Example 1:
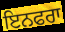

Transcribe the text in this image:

ਇਨਫਰਾ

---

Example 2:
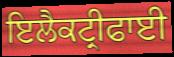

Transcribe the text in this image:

ਇਲੈਕਟ੍ਰੀਫਾਈ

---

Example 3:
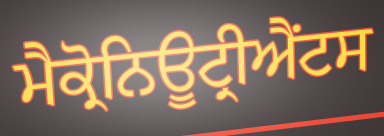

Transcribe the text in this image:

ਮੈਕ੍ਰੋਨਿਊਟ੍ਰੀਐਂਟਸ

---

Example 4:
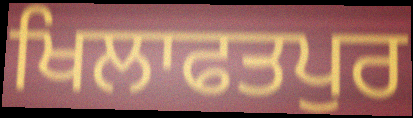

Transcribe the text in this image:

ਖਿਲਾਫਤਪੁਰ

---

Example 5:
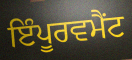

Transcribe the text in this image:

ਇੰਪੂਰਵਮੈਂਟ